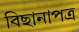
বিছানাপত্র